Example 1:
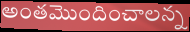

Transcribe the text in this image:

అంతమొందించాలన్న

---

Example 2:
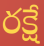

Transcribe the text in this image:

రక్షే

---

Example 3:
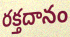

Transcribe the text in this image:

రక్తదానం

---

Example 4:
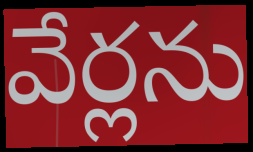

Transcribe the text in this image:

వేర్లను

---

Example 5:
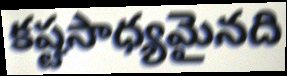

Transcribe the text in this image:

కష్టసాధ్యమైనది